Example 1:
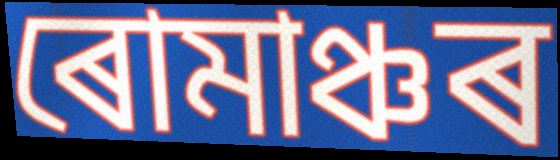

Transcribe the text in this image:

ৰোমাঞ্চৰ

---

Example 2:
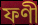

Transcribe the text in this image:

ফণী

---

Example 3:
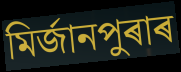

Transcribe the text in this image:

মিৰ্জানপুৰাৰ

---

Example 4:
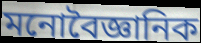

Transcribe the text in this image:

মনোবৈজ্ঞানিক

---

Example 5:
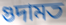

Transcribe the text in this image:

গুদামত